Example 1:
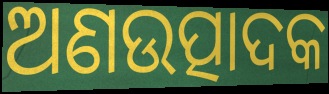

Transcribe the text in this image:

ଅଣଉତ୍ପାଦକ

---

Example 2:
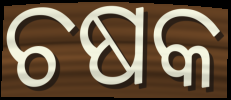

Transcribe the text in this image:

ଚଷକ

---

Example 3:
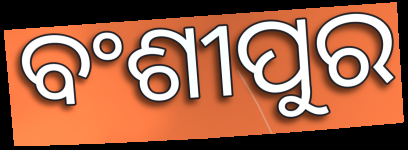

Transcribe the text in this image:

ବଂଶୀପୁର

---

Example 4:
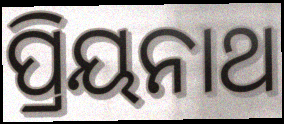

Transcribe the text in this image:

ପ୍ରିୟନାଥ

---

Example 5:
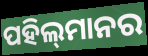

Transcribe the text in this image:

ପହିଲ୍‌ମାନର